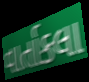
વાર્તાકલા